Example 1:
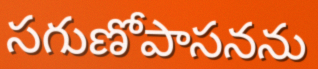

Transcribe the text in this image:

సగుణోపాసనను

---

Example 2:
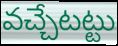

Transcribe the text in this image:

వచ్చేటట్టు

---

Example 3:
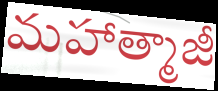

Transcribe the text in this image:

మహాత్మాజీ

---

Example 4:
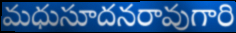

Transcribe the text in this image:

మధుసూదనరావుగారి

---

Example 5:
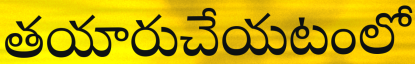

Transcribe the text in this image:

తయారుచేయటంలో